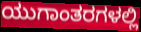
ಯುಗಾಂತರಗಳಲ್ಲಿ